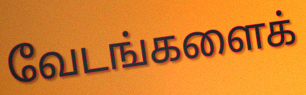
வேடங்களைக்